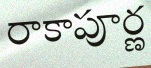
రాకాపూర్ణ